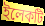
ইলেকটি